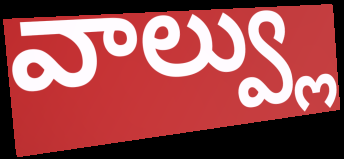
వాల్వ్లు